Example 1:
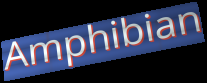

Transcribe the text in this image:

Amphibian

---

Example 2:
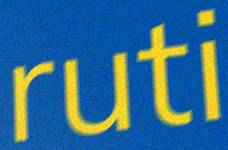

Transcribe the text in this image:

ruti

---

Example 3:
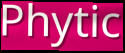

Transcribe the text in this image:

Phytic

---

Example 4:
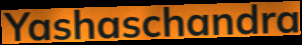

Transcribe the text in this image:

Yashaschandra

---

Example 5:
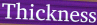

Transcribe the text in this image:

Thickness